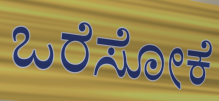
ಒರೆಸೋಕೆ